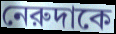
নেরুদাকে